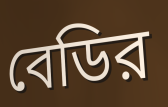
বেডির